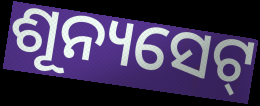
ଶୂନ୍ୟସେଟ୍